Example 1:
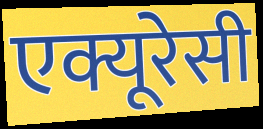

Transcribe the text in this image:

एक्यूरेसी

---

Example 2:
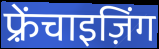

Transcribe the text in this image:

फ़्रेंचाइज़िंग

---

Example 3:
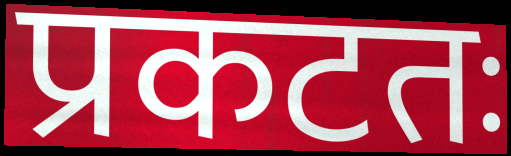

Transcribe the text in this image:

प्रकटतः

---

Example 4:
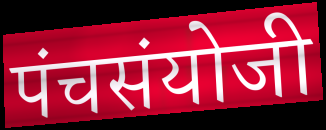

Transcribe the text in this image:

पंचसंयोजी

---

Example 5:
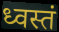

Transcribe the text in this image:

ध्वस्तं